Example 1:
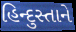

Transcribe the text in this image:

હિન્દુસ્તાને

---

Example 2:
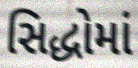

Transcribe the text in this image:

સિદ્ધોમાં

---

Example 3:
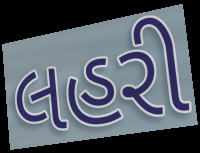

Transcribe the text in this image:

લહરી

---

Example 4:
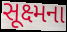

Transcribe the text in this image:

સૂક્ષ્મના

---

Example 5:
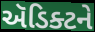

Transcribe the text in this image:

ઍડિક્ટને